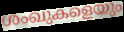
ശംഖുകളെയും